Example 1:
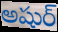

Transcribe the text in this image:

అషుర్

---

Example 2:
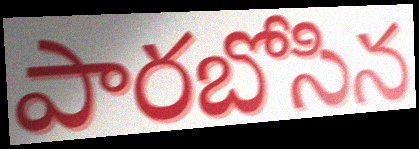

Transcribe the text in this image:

పారబోసిన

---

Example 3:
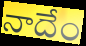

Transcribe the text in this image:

నాదేం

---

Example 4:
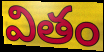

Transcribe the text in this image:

వితం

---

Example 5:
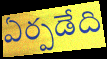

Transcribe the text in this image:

ఏర్పడేది